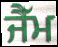
ਜੈੱਮ